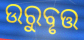
ଉରୁବୃତ୍ତ